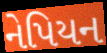
નેપિયન